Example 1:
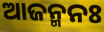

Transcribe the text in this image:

ଆଜନ୍ମନଃ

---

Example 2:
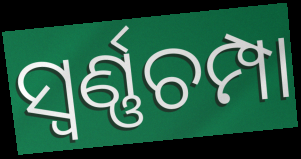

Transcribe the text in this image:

ସ୍ୱର୍ଣ୍ଣଚମ୍ପା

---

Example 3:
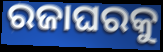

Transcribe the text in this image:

ରଜାଘରକୁ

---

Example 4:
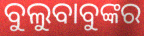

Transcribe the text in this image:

ବୁଲୁବାବୁଙ୍କର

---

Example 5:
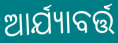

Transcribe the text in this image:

ଆର୍ଯ୍ୟାବର୍ତ୍ତ